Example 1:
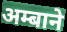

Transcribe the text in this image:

अम्बाने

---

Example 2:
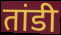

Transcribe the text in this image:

तांडी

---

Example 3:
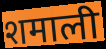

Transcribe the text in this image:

शमाली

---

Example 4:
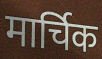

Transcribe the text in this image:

मार्चिक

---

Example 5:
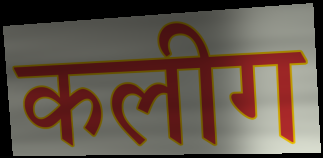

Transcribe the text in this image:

कलीग